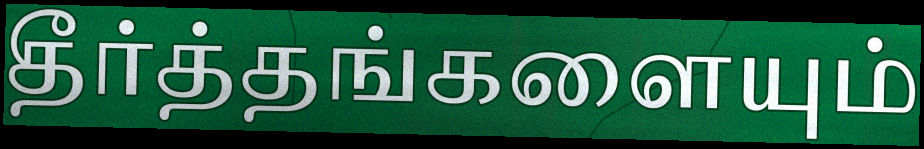
தீர்த்தங்களையும்